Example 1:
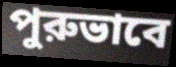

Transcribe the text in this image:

পুরুভাবে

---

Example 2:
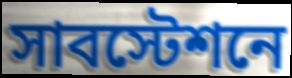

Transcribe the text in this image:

সাবস্টেশনে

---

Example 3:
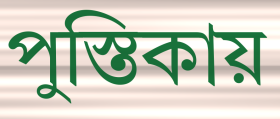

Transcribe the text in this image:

পুস্তিকায়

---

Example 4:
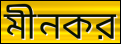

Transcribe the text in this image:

মীনকর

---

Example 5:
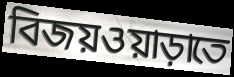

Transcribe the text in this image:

বিজয়ওয়াড়াতে